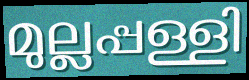
മുല്ലപ്പള്ളി